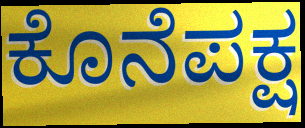
ಕೊನೆಪಕ್ಷ